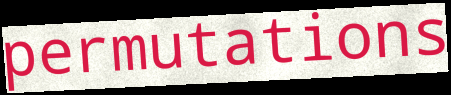
permutations